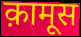
क़ामूस